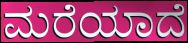
ಮರೆಯಾದೆ